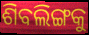
ଶିବଲିଙ୍ଗକୁ